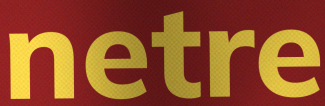
netre